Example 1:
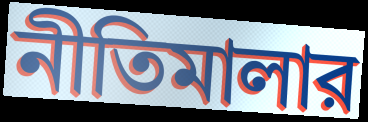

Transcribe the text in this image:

নীতিমালার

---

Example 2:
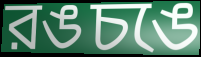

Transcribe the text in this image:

রঙচঙে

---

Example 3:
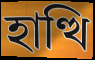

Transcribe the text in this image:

হাত্থি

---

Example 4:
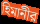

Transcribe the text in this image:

হিমানীর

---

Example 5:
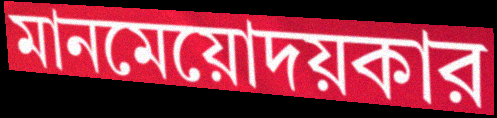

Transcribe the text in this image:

মানমেয়োদয়কার